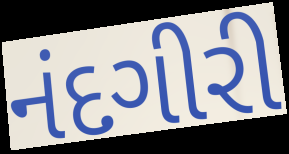
નંદગીરી